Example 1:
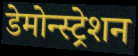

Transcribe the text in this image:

डेमोन्स्ट्रेशन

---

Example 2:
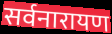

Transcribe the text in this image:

सर्वनारायण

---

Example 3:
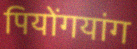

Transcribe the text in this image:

पियोंगयांग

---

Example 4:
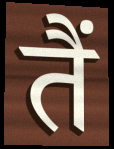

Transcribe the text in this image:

तैं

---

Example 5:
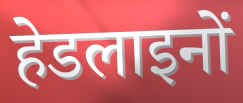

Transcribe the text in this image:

हेडलाइनों